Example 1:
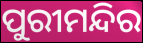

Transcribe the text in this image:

ପୁରୀମନ୍ଦିର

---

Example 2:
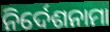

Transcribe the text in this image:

ନିର୍ଦେଶନାମା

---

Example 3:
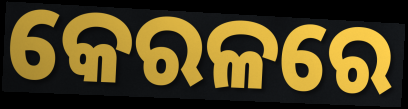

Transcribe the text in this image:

କେରଳରେ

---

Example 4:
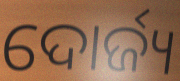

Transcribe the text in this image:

ଦୋର୍ଜ୍ୟ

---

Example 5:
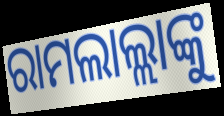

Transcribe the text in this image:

ରାମଲାଲ୍ଲାଙ୍କୁ